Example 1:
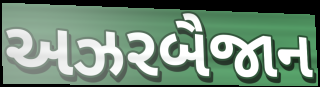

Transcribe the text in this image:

અઝરબૈજાન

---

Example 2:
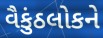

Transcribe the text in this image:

વૈકુંઠલોકને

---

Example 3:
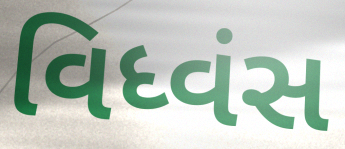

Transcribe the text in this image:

વિધ્વંસ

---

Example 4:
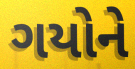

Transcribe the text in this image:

ગયોને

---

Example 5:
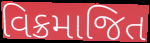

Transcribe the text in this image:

વિક્રમાજિત